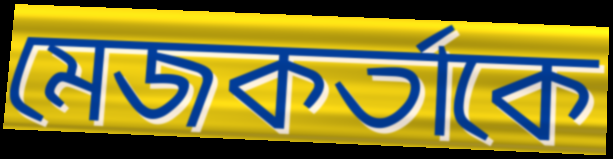
মেজকর্তাকে